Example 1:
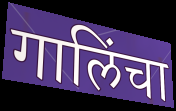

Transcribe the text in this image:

गालिंचा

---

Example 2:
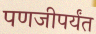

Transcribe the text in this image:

पणजीपर्यंत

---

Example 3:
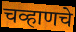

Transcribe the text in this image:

चव्हाणचे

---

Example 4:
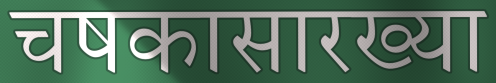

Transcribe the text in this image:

चषकासारख्या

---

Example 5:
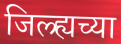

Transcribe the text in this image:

जिल्ह्यच्या